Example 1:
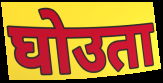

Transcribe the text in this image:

घोउता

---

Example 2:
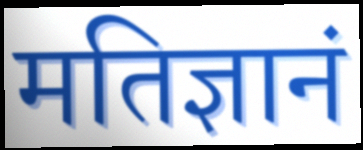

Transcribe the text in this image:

मतिज्ञानं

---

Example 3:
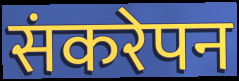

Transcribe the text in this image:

संकरेपन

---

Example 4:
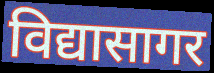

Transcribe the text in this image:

विद्यासागर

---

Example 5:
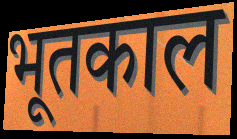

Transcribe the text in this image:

भूतकाल